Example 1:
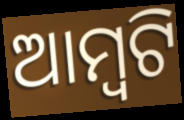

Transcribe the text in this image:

ଆମ୍ୱଟି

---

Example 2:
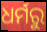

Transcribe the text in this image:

ଧର୍ମରୁ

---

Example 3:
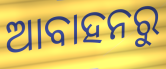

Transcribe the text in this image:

ଆବାହନରୁ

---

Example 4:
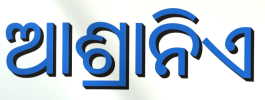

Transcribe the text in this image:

ଆଶ୍ରାନିଏ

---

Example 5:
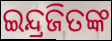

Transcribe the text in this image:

ଇନ୍ଦ୍ରଜିତଙ୍କ